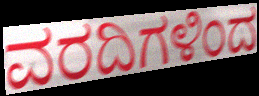
ವರದಿಗಳಿಂದ